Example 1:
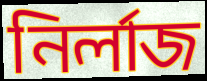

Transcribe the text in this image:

নির্লাজ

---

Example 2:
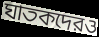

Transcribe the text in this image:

ঘাতকদেরও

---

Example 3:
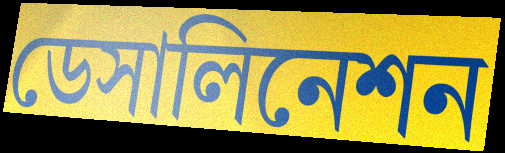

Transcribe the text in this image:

ডেসালিনেশন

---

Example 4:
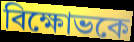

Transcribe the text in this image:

বিক্ষোভকে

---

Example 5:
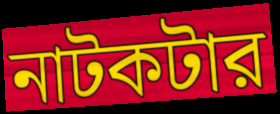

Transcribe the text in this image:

নাটকটার